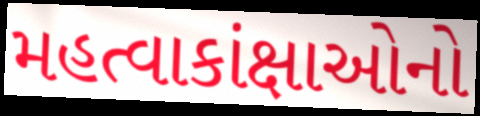
મહત્વાકાંક્ષાઓનો